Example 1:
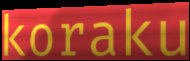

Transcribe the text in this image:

koraku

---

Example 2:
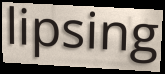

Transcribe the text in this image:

lipsing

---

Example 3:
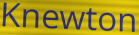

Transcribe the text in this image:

Knewton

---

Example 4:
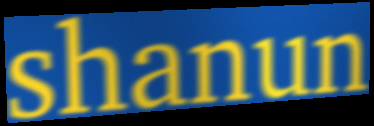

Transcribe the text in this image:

shanun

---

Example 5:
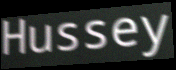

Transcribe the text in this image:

Hussey